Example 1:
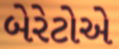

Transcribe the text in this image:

બેરેટોએ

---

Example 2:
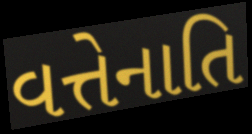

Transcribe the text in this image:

વત્તેનાતિ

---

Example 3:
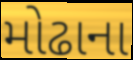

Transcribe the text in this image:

મોઢાના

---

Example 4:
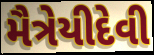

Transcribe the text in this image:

મૈત્રેયીદેવી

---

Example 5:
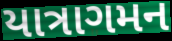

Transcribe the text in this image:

યાત્રાગમન